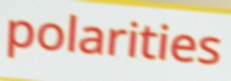
polarities